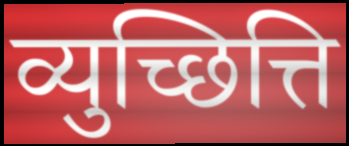
व्युच्छित्ति